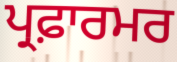
ਪ੍ਰਫ਼ਾਰਮਰ